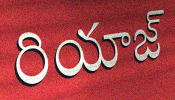
రియాజ్